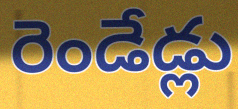
రెండేడ్లు